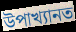
উপাখ্যানত